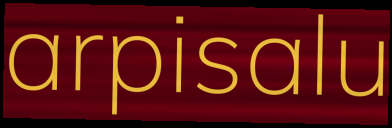
arpisalu